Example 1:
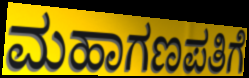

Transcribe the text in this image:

ಮಹಾಗಣಪತಿಗೆ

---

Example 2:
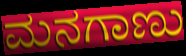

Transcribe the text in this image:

ಮನಗಾಣು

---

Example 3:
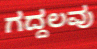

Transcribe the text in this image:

ಗದ್ದಲವು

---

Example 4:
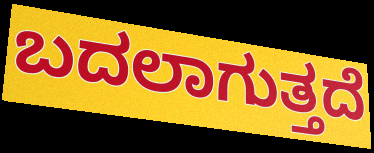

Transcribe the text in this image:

ಬದಲಾಗುತ್ತದೆ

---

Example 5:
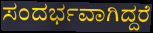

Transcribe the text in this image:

ಸಂದರ್ಭವಾಗಿದ್ದರೆ